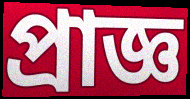
প্রাজ্ঞ